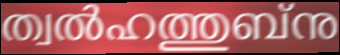
ത്വൽഹത്തുബ്നു